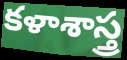
కళాశాస్త్ర